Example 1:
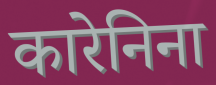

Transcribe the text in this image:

कारेनिना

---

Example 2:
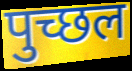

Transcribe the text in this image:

पुच्छल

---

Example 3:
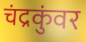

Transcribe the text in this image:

चंद्रकुंवर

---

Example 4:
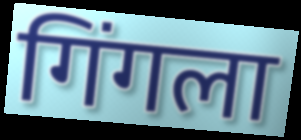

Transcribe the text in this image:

गिंगला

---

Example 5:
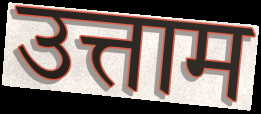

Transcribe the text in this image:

उत्ताम